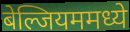
बेल्जियममध्ये